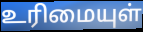
உரிமையுள்